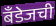
बँडेजची